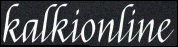
kalkionline